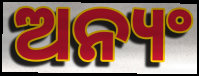
ଅନ୍ୟଂ